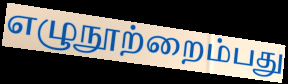
எழுநூற்றைம்பது